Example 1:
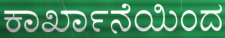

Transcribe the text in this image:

ಕಾರ್ಖಾನೆಯಿಂದ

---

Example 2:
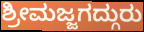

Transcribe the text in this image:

ಶ್ರೀಮಜ್ಜಗದ್ಗುರು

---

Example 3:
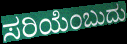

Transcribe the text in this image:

ಸರಿಯೆಂಬುದು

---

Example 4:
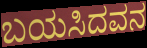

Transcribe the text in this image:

ಬಯಸಿದವನ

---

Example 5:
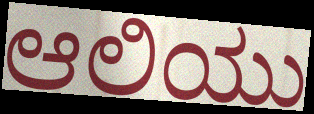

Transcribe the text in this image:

ಆಲಿಯು